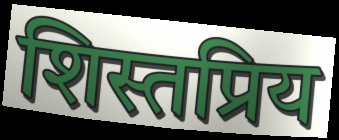
शिस्तप्रिय